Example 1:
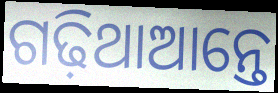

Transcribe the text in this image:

ଗଢ଼ିଥାଆନ୍ତେ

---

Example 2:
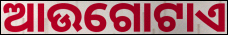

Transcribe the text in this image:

ଆଉଗୋଟାଏ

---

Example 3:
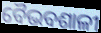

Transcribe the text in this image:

ବୈଭବଶାଳୀ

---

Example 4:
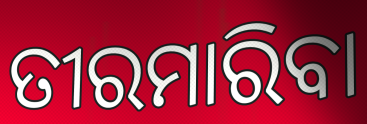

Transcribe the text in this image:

ତୀରମାରିବା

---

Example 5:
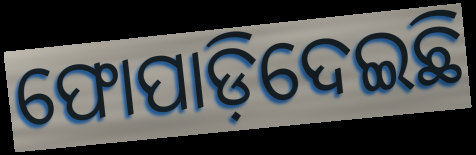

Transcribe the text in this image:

ଫୋପାଡ଼ିଦେଇଛି